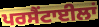
ਪਰਸੈਂਟਾਈਲਾਂ